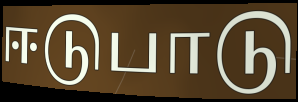
ஈடுபாடு